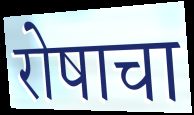
रोषाचा